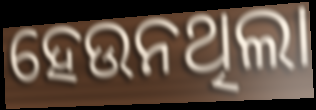
ହେଉନଥିଲା